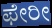
ಫೇರೀ